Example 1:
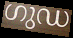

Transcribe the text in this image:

ഗുഡ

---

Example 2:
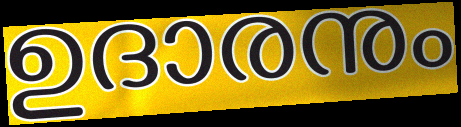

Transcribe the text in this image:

ഉദാരനും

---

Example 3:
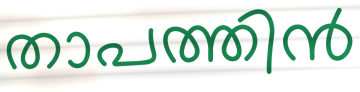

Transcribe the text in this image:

താപത്തിൻ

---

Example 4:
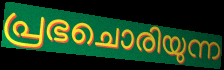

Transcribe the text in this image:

പ്രഭചൊരിയുന്ന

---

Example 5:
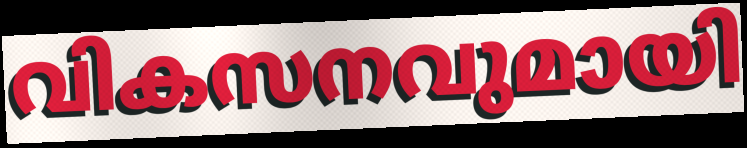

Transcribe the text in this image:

വികസനവുമായി